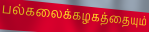
பல்கலைக்கழகத்தையும்